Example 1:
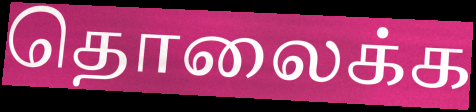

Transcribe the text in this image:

தொலைக்க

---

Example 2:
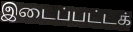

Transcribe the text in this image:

இடைப்பட்டக்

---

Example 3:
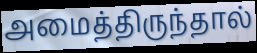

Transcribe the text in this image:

அமைத்திருந்தால்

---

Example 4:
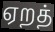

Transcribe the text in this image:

ஏறத்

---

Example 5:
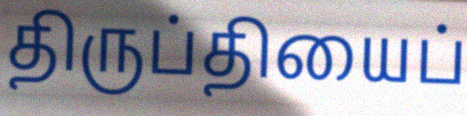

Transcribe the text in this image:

திருப்தியைப்